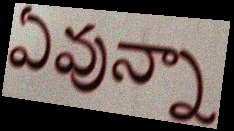
ఏవున్నా